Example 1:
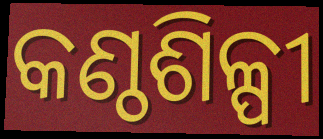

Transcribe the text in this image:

କଣ୍ଠଶିଳ୍ପୀ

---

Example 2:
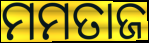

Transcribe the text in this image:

ମମତାଜ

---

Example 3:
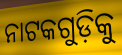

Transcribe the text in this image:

ନାଟକଗୁଡ଼ିକୁ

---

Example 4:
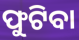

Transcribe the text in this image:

ଫୁଟିବା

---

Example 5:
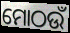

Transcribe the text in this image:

ମୋଠଉଁ